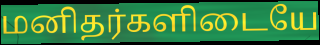
மனிதர்களிடையே